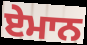
ਏਮਾਨ